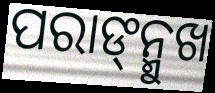
ପରାଙ୍‌ନ୍ମୁଖ